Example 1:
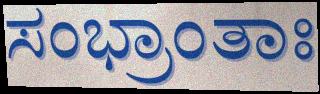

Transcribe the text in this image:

ಸಂಭ್ರಾಂತಾಃ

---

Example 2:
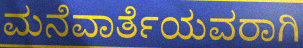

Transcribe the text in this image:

ಮನೆವಾರ್ತೆಯವರಾಗಿ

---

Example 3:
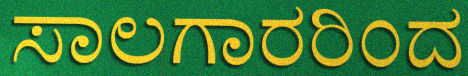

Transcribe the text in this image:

ಸಾಲಗಾರರಿಂದ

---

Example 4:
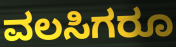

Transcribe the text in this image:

ವಲಸಿಗರೂ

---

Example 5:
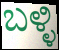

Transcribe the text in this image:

ಬಳ್ಳಿ